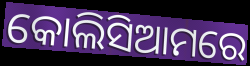
କୋଲିସିଆମରେ